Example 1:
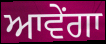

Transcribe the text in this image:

ਆਵੇਂਗਾ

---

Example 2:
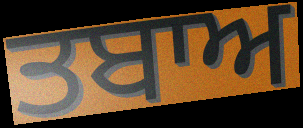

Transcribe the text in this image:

ਤਬਾਅ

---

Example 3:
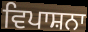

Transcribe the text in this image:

ਵਿਪਾਸ਼ਨਾ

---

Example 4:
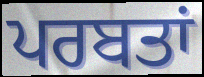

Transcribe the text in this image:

ਪਰਬਤਾਂ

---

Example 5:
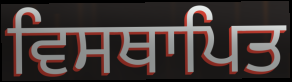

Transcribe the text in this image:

ਵਿਸਥਾਪਿਤ